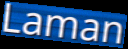
Laman